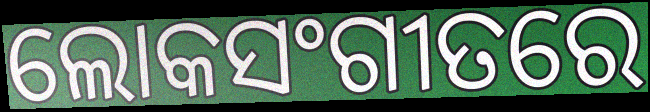
ଲୋକସଂଗୀତରେ